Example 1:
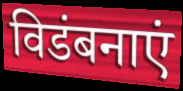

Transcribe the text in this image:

विडंबनाएं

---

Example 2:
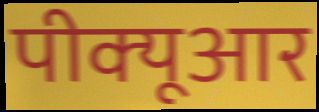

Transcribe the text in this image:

पीक्यूआर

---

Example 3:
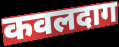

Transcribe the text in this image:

कवलदाग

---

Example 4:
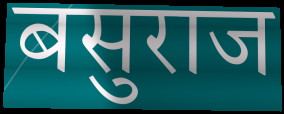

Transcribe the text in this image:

बसुराज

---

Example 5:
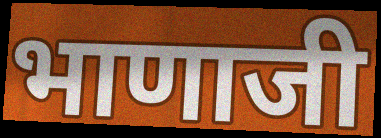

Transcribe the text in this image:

भाणाजी